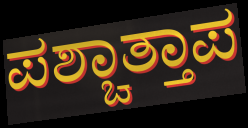
ಪಶ್ಚಾತ್ತಾಪ